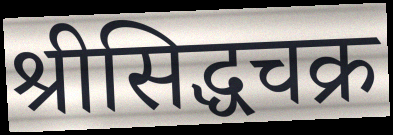
श्रीसिद्धचक्र